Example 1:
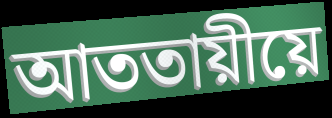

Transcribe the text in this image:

আততায়ীয়ে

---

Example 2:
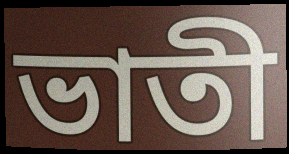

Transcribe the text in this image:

ভাতী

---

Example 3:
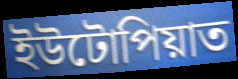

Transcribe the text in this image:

ইউটোপিয়াত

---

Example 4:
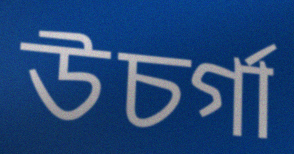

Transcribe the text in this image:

উচৰ্গা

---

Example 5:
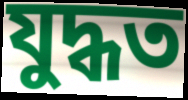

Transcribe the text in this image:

যুদ্ধত